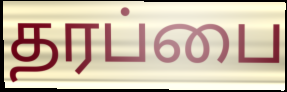
தரப்பை